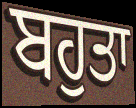
ਬਹੁਤਾ